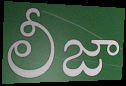
లీజా